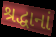
શ્રદ્ધાનાં